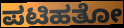
ಪಟಿಹತೋ